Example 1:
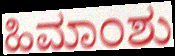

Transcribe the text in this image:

ಹಿಮಾಂಶು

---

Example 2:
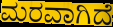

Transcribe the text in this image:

ಮರವಾಗಿದೆ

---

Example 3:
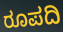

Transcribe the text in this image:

ರೂಪದಿ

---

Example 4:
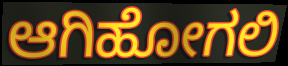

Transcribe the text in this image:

ಆಗಿಹೋಗಲಿ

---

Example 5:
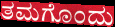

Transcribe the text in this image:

ತಮಗೊಂದು